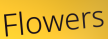
Flowers